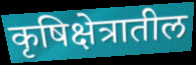
कृषिक्षेत्रातील